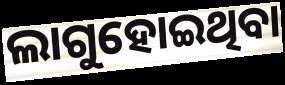
ଲାଗୁହୋଇଥିବା